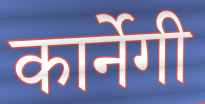
कार्नेगी